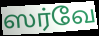
ஸர்வே